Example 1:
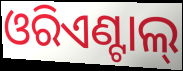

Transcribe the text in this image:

ଓରିଏଣ୍ଟାଲ୍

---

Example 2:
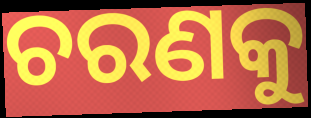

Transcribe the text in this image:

ଚରଣକୁ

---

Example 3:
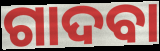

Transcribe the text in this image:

ଗାଦବା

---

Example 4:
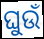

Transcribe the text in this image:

ଘୁଉଁ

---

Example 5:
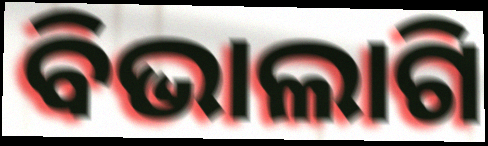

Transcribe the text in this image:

ବିଭାଲାଗି